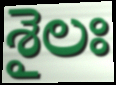
శైలః